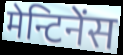
मेन्टिनेंस